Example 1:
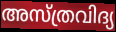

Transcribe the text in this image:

അസ്ത്രവിദ്യ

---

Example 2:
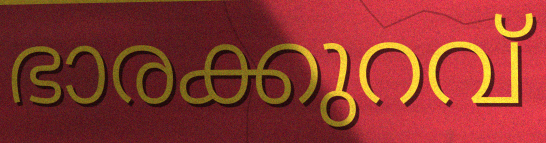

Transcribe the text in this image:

ഭാരക്കുറവ്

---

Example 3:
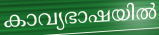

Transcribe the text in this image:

കാവ്യഭാഷയിൽ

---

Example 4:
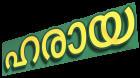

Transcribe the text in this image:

ഹരായ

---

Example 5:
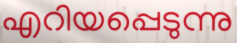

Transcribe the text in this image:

എറിയപ്പെടുന്നു